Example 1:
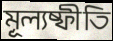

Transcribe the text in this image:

মূল্যষ্ফীতি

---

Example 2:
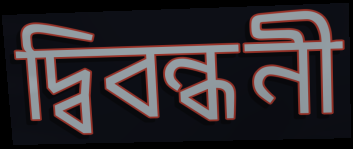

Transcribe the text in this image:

দ্বিবন্ধনী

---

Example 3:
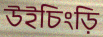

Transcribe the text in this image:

উইচিংড়ি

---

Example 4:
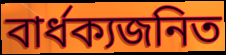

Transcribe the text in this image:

বার্ধক্যজনিত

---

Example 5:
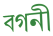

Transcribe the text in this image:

বগনী